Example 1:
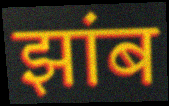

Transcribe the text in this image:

झांब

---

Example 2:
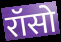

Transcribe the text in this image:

रॉसो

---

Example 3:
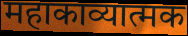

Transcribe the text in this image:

महाकाव्‍यात्‍मक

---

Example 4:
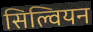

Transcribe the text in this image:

सिल्वियन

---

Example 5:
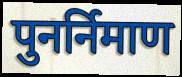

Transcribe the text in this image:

पुनर्निमाण